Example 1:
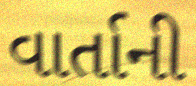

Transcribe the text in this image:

વાર્તાની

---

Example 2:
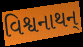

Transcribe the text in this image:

વિશ્વનાથન્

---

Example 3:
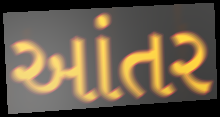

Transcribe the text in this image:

આંતર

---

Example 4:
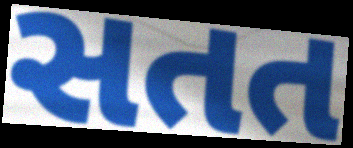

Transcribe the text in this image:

સતત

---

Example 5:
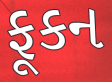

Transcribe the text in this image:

ફૂકન